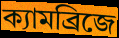
ক্যামব্রিজে